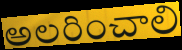
అలరించాలి